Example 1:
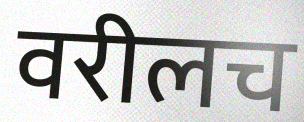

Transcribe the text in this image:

वरीलच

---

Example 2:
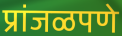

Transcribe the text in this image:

प्रांजळपणे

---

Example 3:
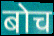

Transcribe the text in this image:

बोच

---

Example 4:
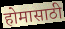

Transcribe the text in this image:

होमासाठी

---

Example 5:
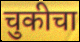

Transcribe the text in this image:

चुकीचा